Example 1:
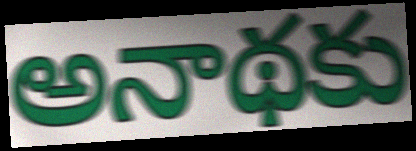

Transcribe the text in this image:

అనాథకు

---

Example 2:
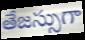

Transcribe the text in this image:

తేజస్సుగా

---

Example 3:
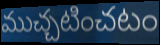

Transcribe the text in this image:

ముచ్చటించటం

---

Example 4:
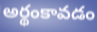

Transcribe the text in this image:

అర్థంకావడం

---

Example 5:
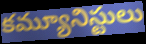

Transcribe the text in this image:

కమ్యూనిస్టులు